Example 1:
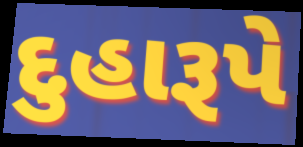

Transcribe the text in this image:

દુહારૂપે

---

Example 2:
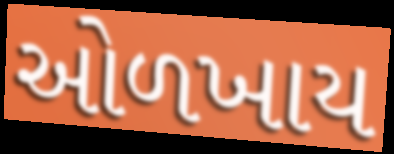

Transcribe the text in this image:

ઓળખાય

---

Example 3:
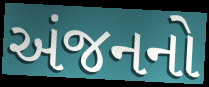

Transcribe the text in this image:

અંજનનો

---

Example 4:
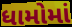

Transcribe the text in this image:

ધામોમાં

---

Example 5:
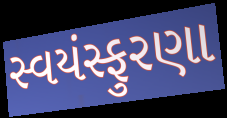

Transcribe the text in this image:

સ્વયંસ્ફુરણા